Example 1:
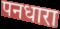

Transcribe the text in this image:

पनधारा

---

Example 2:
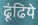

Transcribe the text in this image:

ढूंढिये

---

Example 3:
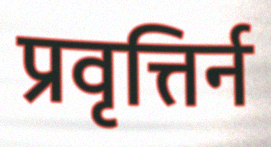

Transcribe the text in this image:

प्रवृत्तिर्न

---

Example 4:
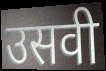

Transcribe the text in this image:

उसवी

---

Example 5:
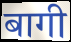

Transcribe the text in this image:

बागी